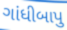
ગાંધીબાપુ